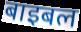
बाइबल